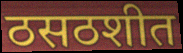
ठसठशीत